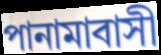
পানামাবাসী